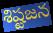
శిష్టజన